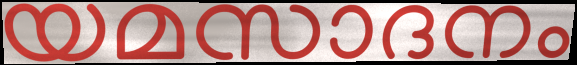
യമസാദനം